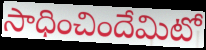
సాధించిందేమిటో